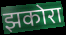
झकोरा